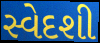
સ્વેદશી